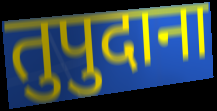
तुपुदाना